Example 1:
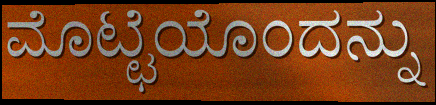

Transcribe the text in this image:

ಮೊಟ್ಟೆಯೊಂದನ್ನು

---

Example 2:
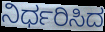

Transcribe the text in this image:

ನಿರ್ಧರಿಸಿದ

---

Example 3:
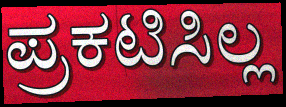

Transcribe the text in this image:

ಪ್ರಕಟಿಸಿಲ್ಲ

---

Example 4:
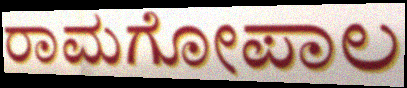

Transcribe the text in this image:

ರಾಮಗೋಪಾಲ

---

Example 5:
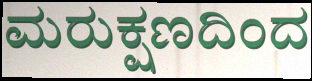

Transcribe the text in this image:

ಮರುಕ್ಷಣದಿಂದ